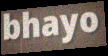
bhayo